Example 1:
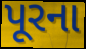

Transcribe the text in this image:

પૂરના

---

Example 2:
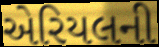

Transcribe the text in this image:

એરિયલની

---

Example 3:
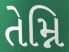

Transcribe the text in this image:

તેમ્નિ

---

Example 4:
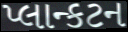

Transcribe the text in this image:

પ્લાન્કટન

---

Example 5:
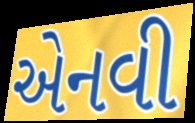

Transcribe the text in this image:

એનવી